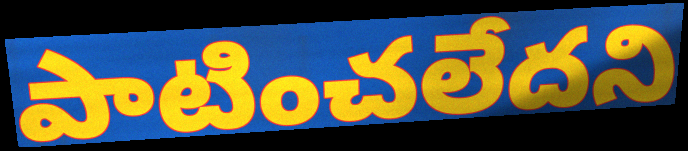
పాటించలేదని